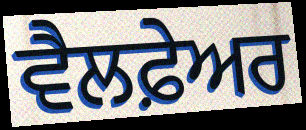
ਵੈਲਫ਼ੇਅਰ